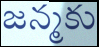
జన్మకు